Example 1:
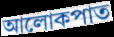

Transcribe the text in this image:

আলোকপাত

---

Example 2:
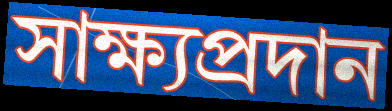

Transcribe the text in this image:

সাক্ষ্যপ্রদান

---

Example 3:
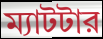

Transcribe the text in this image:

ম্যাটটার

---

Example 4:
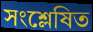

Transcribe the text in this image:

সংশ্লেষিত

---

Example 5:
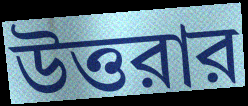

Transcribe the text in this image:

উত্তরার